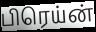
பிரெய்ன்